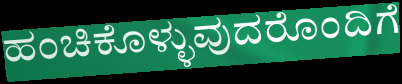
ಹಂಚಿಕೊಳ್ಳುವುದರೊಂದಿಗೆ